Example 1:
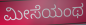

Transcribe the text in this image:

ಮೀಸೆಯಂಥ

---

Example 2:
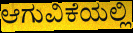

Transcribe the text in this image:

ಆಗುವಿಕೆಯಲ್ಲಿ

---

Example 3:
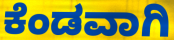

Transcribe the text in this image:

ಕೆಂಡವಾಗಿ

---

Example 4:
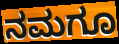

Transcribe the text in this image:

ನಮಗೂ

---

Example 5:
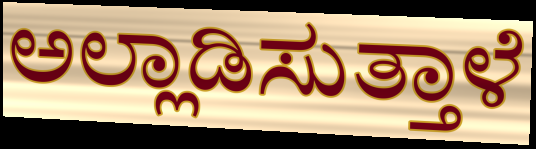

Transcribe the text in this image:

ಅಲ್ಲಾಡಿಸುತ್ತಾಳೆ